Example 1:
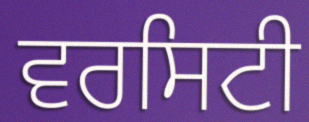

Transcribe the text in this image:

ਵਰਸਿਟੀ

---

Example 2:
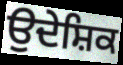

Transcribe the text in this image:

ਉਦੇਸ਼ਿਕ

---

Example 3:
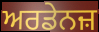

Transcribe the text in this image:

ਅਰਡੇਨਜ਼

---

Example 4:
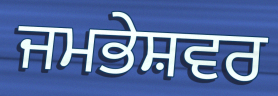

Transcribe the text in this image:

ਜਮਭੇਸ਼ਵਰ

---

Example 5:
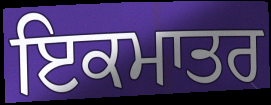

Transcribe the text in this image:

ਇਕਮਾਤਰ